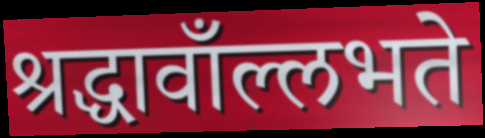
श्रद्धावाँल्लभते